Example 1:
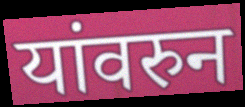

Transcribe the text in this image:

यांवरुन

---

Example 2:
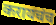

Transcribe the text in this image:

करायचंच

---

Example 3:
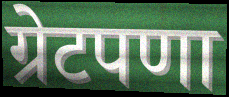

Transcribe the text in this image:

ग्रेटपणा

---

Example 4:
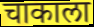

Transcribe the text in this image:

चाकाला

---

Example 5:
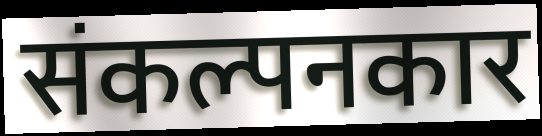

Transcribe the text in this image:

संकल्पनकार